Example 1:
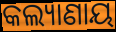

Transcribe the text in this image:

କଲ୍ୟାଣାୟ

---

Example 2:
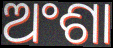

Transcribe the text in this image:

ଅଂଶା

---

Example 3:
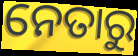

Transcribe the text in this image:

ନେତାରୁ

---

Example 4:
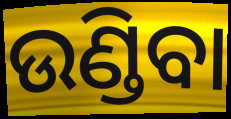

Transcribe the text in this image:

ଉଣ୍ଡିବା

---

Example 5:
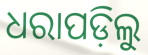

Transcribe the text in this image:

ଧରାପଡ଼ିଲୁ